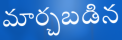
మార్చబడిన